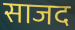
साजद